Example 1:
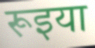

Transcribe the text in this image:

रूइया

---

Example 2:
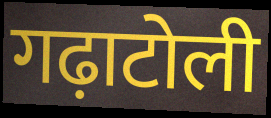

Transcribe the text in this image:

गढ़ाटोली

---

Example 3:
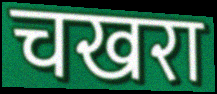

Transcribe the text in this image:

चखरा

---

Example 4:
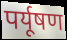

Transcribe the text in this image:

पर्यूषण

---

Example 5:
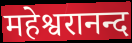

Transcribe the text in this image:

महेश्वरानन्द